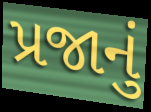
પ્રજાનું